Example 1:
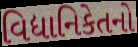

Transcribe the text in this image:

વિદ્યાનિકેતનો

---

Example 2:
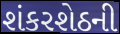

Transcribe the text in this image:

શંકરશેઠની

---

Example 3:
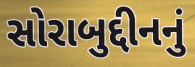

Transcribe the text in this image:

સોરાબુદ્દીનનું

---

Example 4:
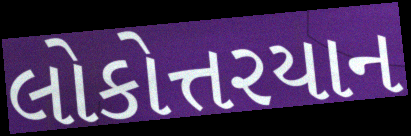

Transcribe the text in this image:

લોકોત્તરયાન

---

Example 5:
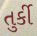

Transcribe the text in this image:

તુર્કી